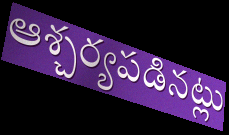
ఆశ్చర్యపడినట్లు